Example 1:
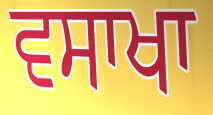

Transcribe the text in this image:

ਵਸਾਖਾ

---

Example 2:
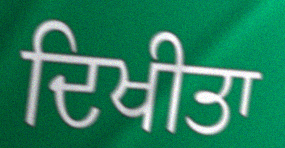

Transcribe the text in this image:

ਦਿਖੀਤਾ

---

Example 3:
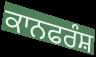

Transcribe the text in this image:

ਕਾਨਫਰੰਸ਼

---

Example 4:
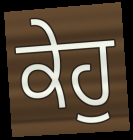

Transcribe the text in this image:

ਕੇਹੁ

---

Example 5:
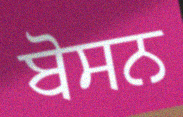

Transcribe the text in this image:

ਬੋਸਨ